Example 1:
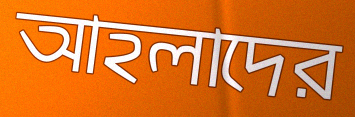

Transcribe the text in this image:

আহলাদের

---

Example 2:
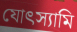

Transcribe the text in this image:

যোৎস্যামি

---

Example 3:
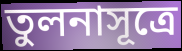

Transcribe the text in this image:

তুলনাসূত্রে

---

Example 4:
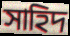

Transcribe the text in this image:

সাহিদ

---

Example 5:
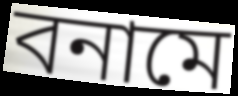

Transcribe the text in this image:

বনামে